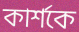
কার্শকে